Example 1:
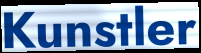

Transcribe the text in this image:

Kunstler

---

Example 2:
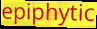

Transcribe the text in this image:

epiphytic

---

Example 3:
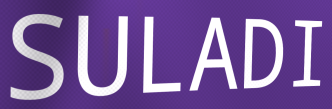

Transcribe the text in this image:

SULADI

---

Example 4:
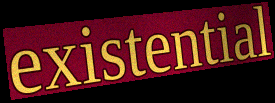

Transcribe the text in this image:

existential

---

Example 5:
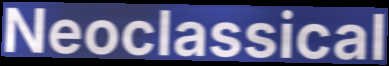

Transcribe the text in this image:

Neoclassical